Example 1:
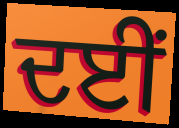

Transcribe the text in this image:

ਦਈਂ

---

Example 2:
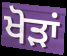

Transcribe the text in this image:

ਖੋੜਾਂ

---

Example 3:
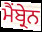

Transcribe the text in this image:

ਮੈਂਬ੍ਰੇਨ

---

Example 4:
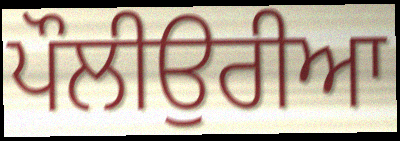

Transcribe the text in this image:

ਪੌਲੀਉਰੀਆ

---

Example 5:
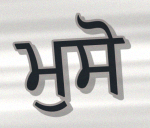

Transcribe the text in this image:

ਮੁਸੋ